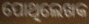
ପୋଥିଲେଖକ